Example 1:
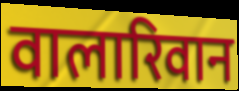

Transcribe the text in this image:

वालारिवान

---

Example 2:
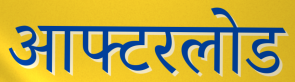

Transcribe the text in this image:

आफ्टरलोड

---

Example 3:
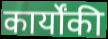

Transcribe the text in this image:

कार्योंकी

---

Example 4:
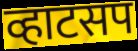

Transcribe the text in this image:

व्हाटसप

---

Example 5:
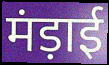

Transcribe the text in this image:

मंड़ाई